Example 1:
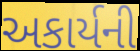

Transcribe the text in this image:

અકાર્યની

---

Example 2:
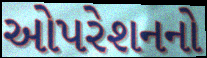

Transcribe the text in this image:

ઓપરેશનનો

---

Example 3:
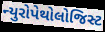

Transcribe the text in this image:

ન્યુરોપેથોલોજિસ્ટ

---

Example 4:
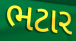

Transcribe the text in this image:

ભટાર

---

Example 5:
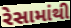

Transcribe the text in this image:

રેસામાંથી